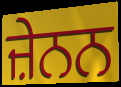
ਜ਼ੇਨਨ